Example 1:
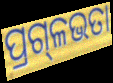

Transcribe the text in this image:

ପ୍ରଗ୍‍ଳଭତା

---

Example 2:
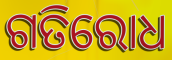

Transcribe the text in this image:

ଗତିରୋଧ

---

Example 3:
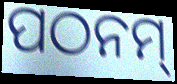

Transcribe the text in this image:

ପଠନମ୍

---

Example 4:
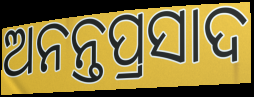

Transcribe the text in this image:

ଅନନ୍ତପ୍ରସାଦ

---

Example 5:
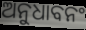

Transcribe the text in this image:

ଅନୁଧାବନଂ